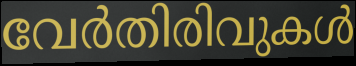
വേർതിരിവുകൾ